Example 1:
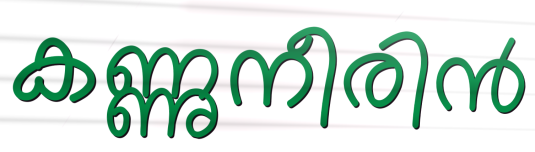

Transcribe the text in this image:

കണ്ണുനീരിൻ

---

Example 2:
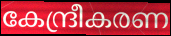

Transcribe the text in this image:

കേന്ദ്രീകരണ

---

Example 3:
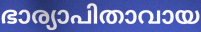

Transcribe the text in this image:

ഭാര്യാപിതാവായ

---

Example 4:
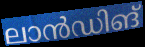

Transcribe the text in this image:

ലാൻഡിങ്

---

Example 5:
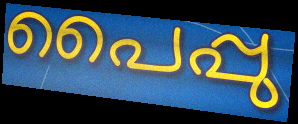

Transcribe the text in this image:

പൈപ്പു